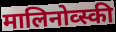
मालिनोव्स्की